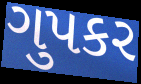
ગુપકર